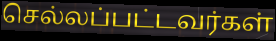
செல்லப்பட்டவர்கள்